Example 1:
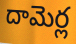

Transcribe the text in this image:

దామెర్ల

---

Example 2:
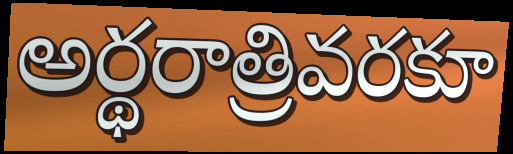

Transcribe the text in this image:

అర్థరాత్రివరకూ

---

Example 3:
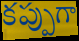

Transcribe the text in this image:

కప్పుగా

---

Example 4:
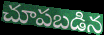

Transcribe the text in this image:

చూపబడిన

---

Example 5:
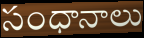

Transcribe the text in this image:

సంధానాలు